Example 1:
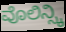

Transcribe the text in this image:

ವೊಲಿನ್ಸ್ಕಿ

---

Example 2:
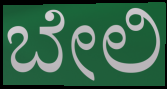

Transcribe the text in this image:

ಬೇಲಿ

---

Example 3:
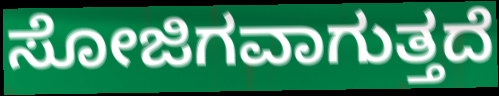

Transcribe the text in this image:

ಸೋಜಿಗವಾಗುತ್ತದೆ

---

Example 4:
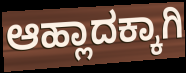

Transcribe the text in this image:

ಆಹ್ಲಾದಕ್ಕಾಗಿ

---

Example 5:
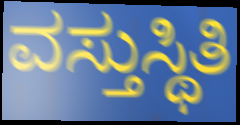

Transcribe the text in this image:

ವಸ್ತುಸ್ಥಿತಿ